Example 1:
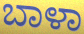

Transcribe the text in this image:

ಬಾಳಾ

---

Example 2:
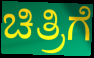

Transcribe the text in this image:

ಚಿತ್ರಿಗೆ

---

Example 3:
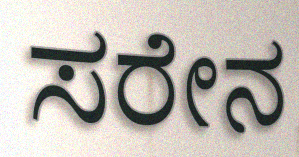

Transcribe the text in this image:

ಸರೇನ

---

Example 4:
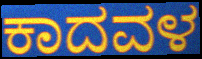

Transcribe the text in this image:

ಕಾದವಳ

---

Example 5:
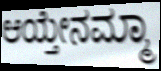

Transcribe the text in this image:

ಆಯ್ತೇನಮ್ಮಾ